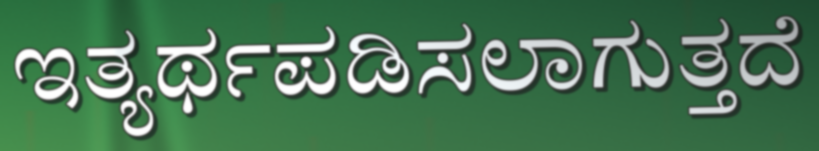
ಇತ್ಯರ್ಥಪಡಿಸಲಾಗುತ್ತದೆ